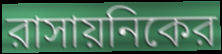
রাসায়নিকের